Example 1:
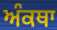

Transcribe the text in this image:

ਅੰਕਥਾ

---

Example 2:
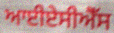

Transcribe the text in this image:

ਆਈਏਸੀਐੱਸ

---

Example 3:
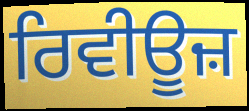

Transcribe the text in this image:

ਰਿਵੀਊਜ਼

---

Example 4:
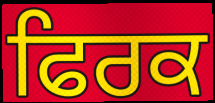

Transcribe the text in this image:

ਫਿਰਕ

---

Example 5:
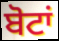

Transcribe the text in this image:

ਬੋਟਾਂ